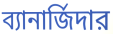
ব্যানার্জিদার